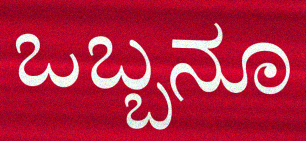
ಒಬ್ಬನೂ